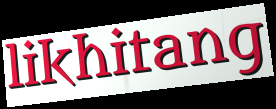
likhitang